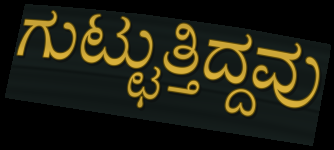
ಗುಟ್ಟುತ್ತಿದ್ದವು